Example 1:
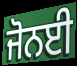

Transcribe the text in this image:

ਜੋਨਈ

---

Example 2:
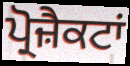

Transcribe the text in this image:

ਪ੍ਰੋਜ਼ੈਕਟਾਂ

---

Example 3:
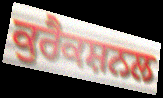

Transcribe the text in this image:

ਕੁਰੈਕਸ਼ਨਲ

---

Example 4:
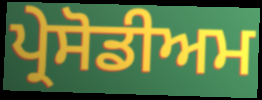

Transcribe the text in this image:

ਪ੍ਰੇਸੋਡੀਅਮ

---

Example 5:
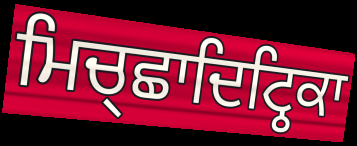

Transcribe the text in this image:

ਮਿਚ੍ਛਾਦਿਟ੍ਠਿਕਾ